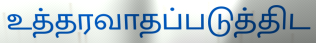
உத்தரவாதப்படுத்திட